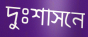
দুঃশাসনে